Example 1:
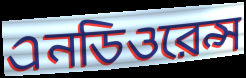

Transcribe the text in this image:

এনডিওরেন্স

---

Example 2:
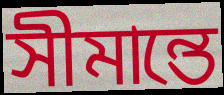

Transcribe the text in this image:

সীমান্তে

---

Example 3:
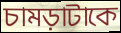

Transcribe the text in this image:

চামড়াটাকে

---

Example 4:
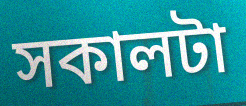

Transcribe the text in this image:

সকালটা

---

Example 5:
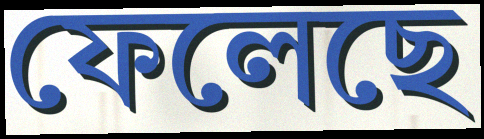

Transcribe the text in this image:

ফেলেছে